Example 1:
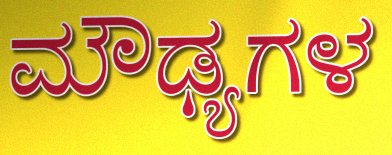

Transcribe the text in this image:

ಮೌಢ್ಯಗಳ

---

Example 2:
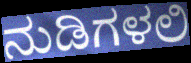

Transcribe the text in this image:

ನುಡಿಗಳಲಿ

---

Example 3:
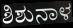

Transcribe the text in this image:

ಶಿಶುನಾಳ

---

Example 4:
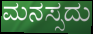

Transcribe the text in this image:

ಮನಸ್ಸದು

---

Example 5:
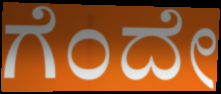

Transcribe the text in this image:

ಗೆಂದೇ